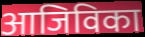
आजिविका